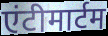
एंटीमार्टम